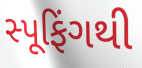
સ્પૂફિંગથી